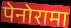
पेनोरामा